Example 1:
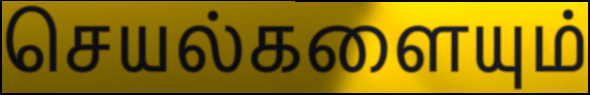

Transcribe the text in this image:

செயல்களையும்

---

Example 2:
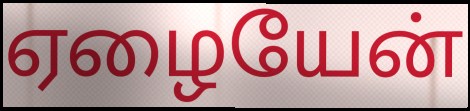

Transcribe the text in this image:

ஏழையேன்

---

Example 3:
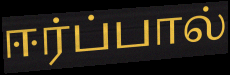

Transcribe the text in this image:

ஈர்ப்பால்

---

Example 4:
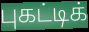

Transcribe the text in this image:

புகட்டிக்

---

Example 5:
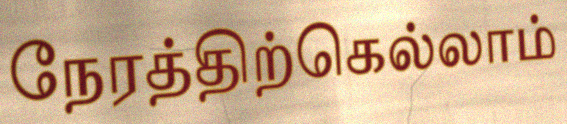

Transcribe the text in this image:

நேரத்திற்கெல்லாம்